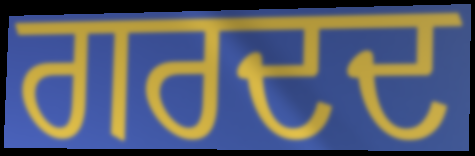
ਗਰਦਦ